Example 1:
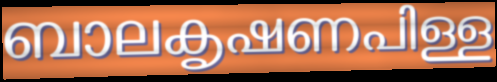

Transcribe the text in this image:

ബാലകൃഷണപിള്ള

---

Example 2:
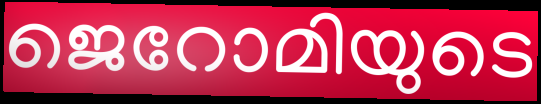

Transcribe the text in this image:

ജെറോമിയുടെ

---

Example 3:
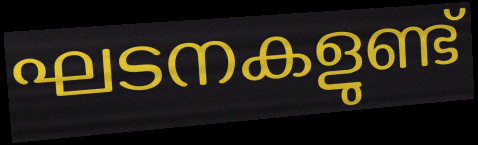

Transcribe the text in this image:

ഘടനകളുണ്ട്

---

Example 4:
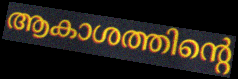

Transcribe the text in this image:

ആകാശത്തിന്റെ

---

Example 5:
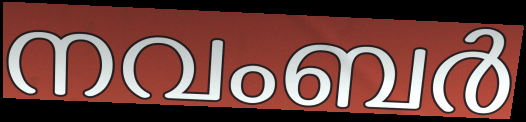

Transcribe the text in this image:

നവംബർ